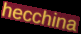
hecchina